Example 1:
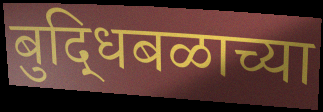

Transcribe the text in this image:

बुद्धिबळाच्या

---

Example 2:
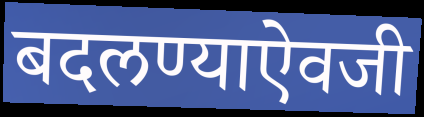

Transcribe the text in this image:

बदलण्याऐवजी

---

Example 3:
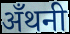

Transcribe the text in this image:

अँथनी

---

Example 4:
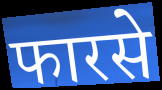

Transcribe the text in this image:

फारसे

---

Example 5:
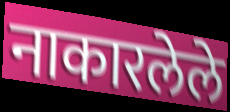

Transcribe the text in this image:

नाकारलेले